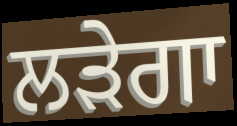
ਲੜੇਗਾ